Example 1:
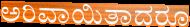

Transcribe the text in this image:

ಅರಿವಾಯಿತಾದರೂ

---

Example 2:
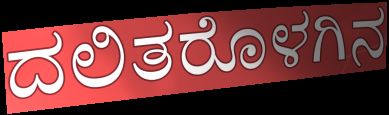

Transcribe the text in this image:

ದಲಿತರೊಳಗಿನ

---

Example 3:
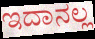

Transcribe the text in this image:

ಇದಾನಲ್ಲ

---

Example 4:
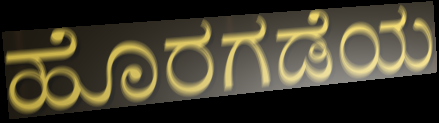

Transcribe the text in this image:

ಹೊರಗಡೆಯ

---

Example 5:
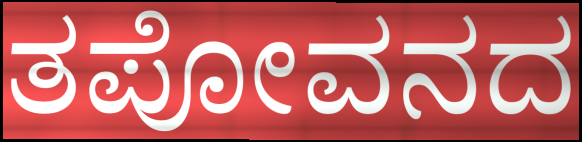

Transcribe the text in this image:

ತಪೋವನದ